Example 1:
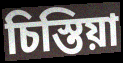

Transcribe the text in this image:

চিস্তিয়া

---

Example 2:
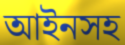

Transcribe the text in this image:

আইনসহ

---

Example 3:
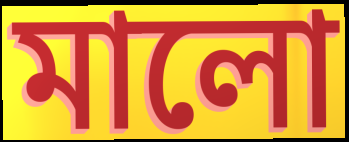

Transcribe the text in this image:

মালো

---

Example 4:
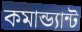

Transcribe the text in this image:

কমান্ড্যান্ট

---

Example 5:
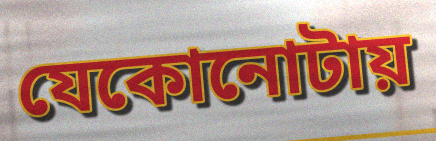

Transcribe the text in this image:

যেকোনোটায়